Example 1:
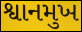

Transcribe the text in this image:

શ્વાનમુખ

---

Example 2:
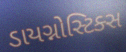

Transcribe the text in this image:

ડાયગ્નોસ્ટિક્સ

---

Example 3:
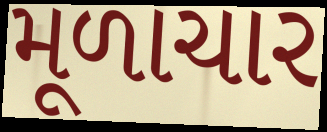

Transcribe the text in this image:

મૂળાચાર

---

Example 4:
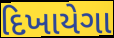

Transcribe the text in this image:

દિખાયેગા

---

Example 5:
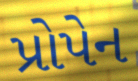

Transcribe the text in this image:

પ્રોપેન